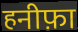
हनीफ़ा